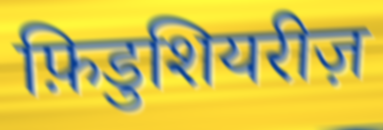
फ़िडुशियरीज़